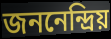
জননেন্দ্রিয়